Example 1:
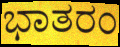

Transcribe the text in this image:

ಭಾತರಂ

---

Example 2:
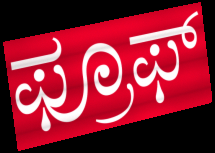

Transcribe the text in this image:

ಫ್ರೂಫ್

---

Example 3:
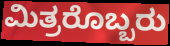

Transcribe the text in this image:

ಮಿತ್ರರೊಬ್ಬರು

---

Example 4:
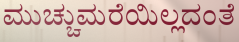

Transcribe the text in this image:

ಮುಚ್ಚುಮರೆಯಿಲ್ಲದಂತೆ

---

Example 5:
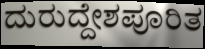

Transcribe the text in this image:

ದುರುದ್ದೇಶಪೂರಿತ